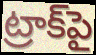
ట్రాక్‌పై